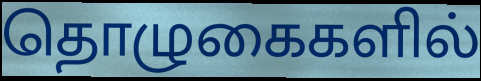
தொழுகைகளில்